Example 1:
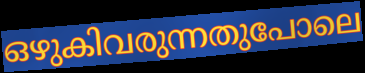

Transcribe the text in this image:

ഒഴുകിവരുന്നതുപോലെ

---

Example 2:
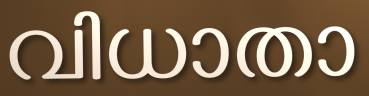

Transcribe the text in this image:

വിധാതാ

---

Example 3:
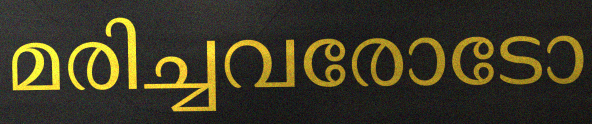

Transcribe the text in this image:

മരിച്ചവരോടോ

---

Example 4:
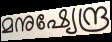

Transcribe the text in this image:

മനുഷ്യേന്ദ്ര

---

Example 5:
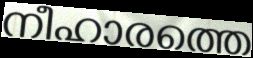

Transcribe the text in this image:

നീഹാരത്തെ